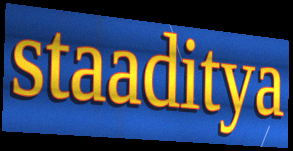
staaditya